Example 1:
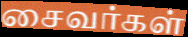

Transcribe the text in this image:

சைவர்கள்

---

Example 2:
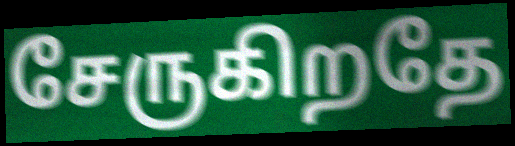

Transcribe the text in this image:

சேருகிறதே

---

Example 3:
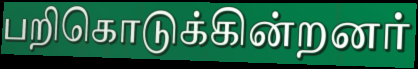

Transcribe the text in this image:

பறிகொடுக்கின்றனர்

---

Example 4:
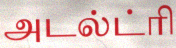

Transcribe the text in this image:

அடல்ட்ரி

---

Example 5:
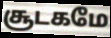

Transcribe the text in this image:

சூடகமே